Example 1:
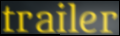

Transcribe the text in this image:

trailer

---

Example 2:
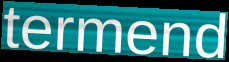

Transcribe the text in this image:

termend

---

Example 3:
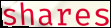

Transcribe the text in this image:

shares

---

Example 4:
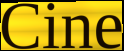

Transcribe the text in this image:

Cine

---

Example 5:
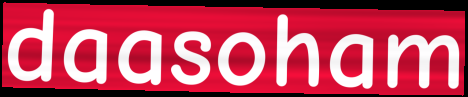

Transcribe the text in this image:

daasoham